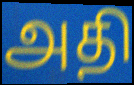
அதி